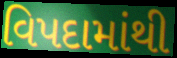
વિપદામાંથી